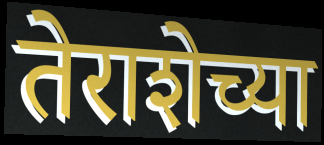
तेराशेच्या